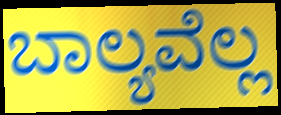
ಬಾಲ್ಯವೆಲ್ಲ